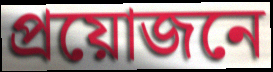
প্ৰয়োজনে